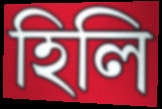
হিলি